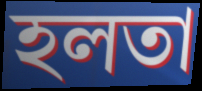
হলতা